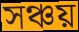
সঞ্চয়